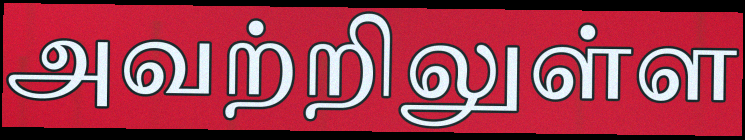
அவற்றிலுள்ள